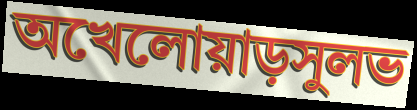
অখেলোয়াড়সুলভ